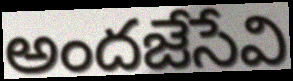
అందజేసేవి